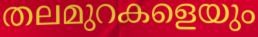
തലമുറകളെയും